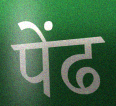
पेंढ